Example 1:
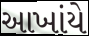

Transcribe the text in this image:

આખાંયે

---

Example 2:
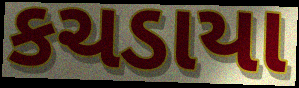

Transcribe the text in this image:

કચડાયા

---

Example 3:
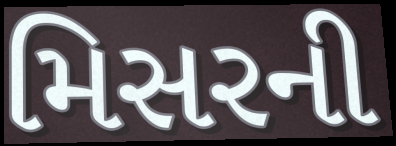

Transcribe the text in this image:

મિસરની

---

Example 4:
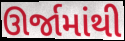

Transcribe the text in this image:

ઊર્જામાંથી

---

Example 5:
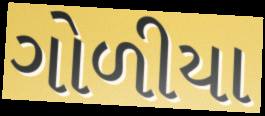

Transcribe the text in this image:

ગોળીયા